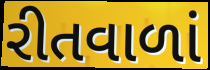
રીતવાળાં